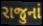
રાજુનાં